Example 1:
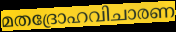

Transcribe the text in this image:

മതദ്രോഹവിചാരണ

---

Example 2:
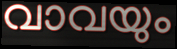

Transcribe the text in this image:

വാവയും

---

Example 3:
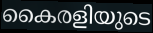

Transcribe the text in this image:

കൈരളിയുടെ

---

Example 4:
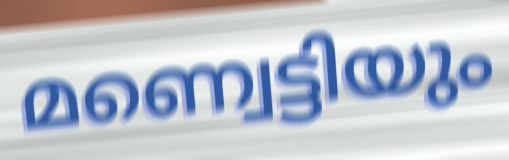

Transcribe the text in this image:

മണ്വെട്ടിയും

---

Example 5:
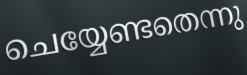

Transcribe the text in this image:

ചെയ്യേണ്ടതെന്നു